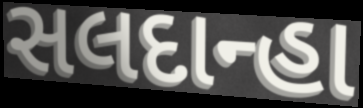
સલદાન્હા